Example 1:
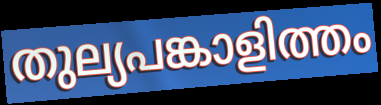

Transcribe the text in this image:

തുല്യപങ്കാളിത്തം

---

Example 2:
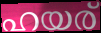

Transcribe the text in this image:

ഹയര്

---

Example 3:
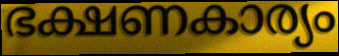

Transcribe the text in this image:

ഭക്ഷണകാര്യം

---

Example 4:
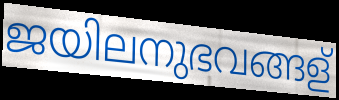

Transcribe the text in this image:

ജയിലനുഭവങ്ങള്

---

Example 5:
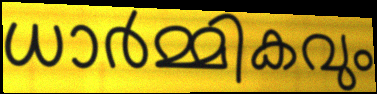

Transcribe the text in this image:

ധാർമ്മികവും